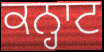
ਕਨ੍ਹਾਟ